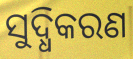
ସୁଦ୍ଧିକରଣ